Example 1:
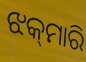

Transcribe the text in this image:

ଝକ୍‌ମାରି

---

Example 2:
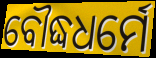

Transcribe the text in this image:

ବୌଦ୍ଧଧର୍ମେ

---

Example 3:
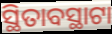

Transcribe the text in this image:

ସ୍ଥିତାବସ୍ଥାଟା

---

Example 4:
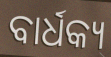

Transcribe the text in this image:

ବାର୍ଧକ୍ୟ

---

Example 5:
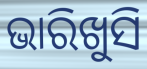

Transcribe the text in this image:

ଭାରିଖୁସି